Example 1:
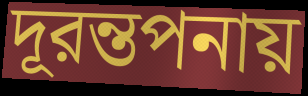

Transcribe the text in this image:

দূরন্তপনায়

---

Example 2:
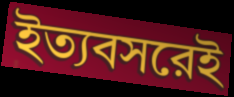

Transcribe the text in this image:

ইত্যবসরেই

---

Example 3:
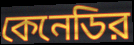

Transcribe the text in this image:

কেনেডির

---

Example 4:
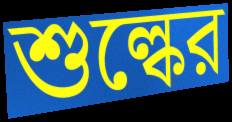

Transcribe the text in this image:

শুল্কের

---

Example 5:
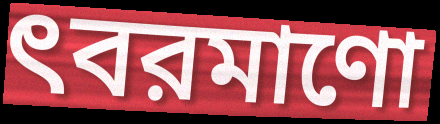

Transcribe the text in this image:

ৎবরমাণো